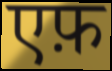
एफ़